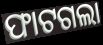
ଫାଟଗଲା